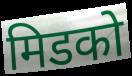
मिडको